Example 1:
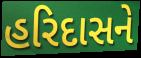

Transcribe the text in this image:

હરિદાસને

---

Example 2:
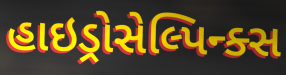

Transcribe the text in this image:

હાઇડ્રોસેલ્પિન્ક્સ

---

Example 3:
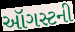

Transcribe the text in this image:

ઑગસ્ટની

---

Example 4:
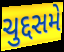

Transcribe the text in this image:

ચુદ્દસમે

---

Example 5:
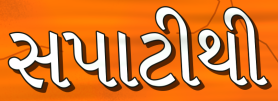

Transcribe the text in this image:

સપાટીથી